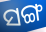
ସଙ୍ଗ